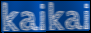
kaikai